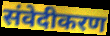
संवेदीकरण